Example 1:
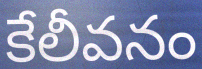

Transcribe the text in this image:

కేలీవనం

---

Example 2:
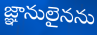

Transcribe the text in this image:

జ్ఞానులైనను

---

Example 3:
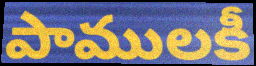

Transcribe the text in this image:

పాములకీ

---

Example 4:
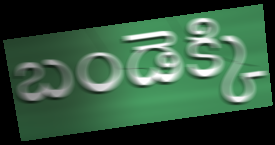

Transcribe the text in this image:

బండెక్కి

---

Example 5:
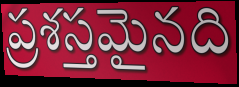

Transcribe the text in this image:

ప్రశస్తమైనది